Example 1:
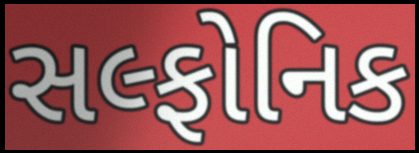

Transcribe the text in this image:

સલ્ફોનિક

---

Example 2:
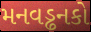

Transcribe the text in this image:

મનવડ્ઢનકો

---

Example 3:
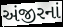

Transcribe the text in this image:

અંજીરનાં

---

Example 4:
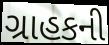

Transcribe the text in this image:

ગ્રાહકની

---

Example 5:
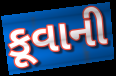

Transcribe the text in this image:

કૂવાની